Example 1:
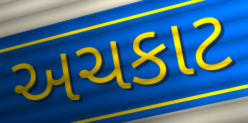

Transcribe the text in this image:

અચકાટ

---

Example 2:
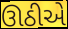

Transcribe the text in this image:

ઊઠીએ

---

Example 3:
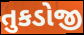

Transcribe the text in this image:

તુકડોજી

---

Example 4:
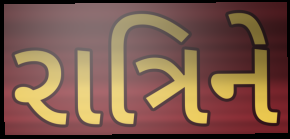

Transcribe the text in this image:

રાત્રિને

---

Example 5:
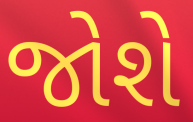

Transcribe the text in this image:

જોશે